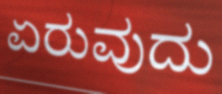
ಏರುವುದು